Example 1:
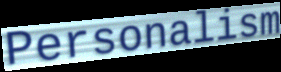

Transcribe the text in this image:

Personalism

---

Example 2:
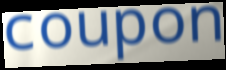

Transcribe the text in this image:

coupon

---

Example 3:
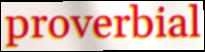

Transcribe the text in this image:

proverbial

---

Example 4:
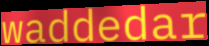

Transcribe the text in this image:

waddedar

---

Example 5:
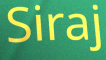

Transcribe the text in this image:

Siraj